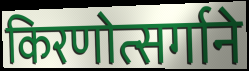
किरणोत्सर्गाने